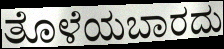
ತೊಳೆಯಬಾರದು